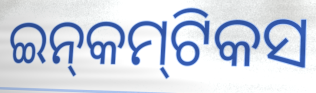
ଇନ୍‍କମ୍‍ଟିକସ